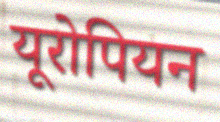
यूरोपियन